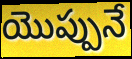
యొప్పునే